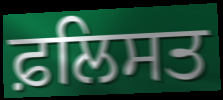
ਫ਼ਲਿਸਤ